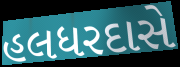
હલધરદાસે